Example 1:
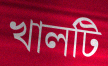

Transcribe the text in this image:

খালটি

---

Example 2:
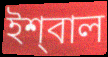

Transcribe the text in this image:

ইশ্‌বাল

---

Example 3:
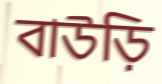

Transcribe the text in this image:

বাউড়ি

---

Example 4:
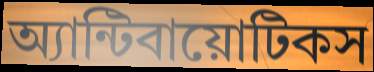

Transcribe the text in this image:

অ্যান্টিবায়োটিকস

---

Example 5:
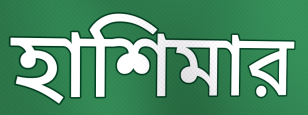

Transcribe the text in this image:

হাশিমার